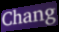
Chang